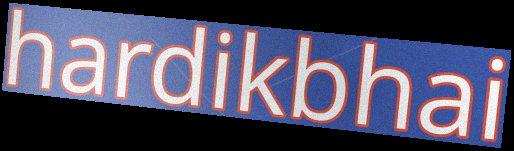
hardikbhai